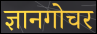
ज्ञानगोचर